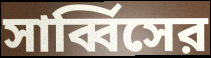
সার্ব্বিসের